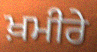
ਖ਼ਮੀਰੇ